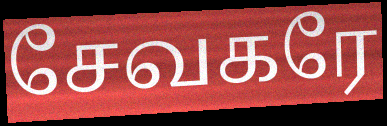
சேவகரே